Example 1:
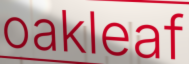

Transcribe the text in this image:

oakleaf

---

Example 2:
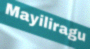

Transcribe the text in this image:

Mayiliragu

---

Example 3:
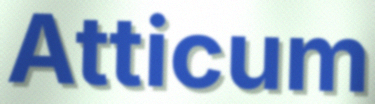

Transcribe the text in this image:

Atticum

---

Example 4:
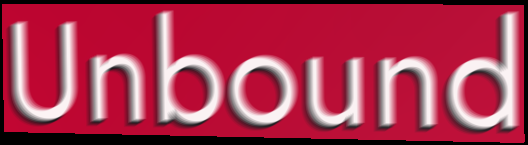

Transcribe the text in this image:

Unbound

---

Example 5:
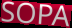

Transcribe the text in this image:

SOPA